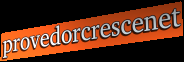
provedorcrescenet